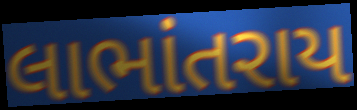
લાભાંતરાય